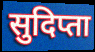
सुदिप्ता